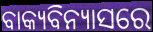
ବାକ୍ୟବିନ୍ୟାସରେ